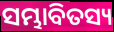
ସମ୍ଭାବିତସ୍ୟ